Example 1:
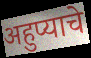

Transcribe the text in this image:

अहुप्याचे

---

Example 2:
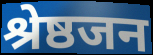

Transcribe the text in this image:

श्रेष्ठजन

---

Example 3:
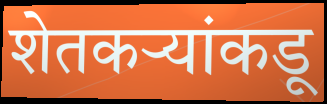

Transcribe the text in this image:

शेतकऱ्यांकडू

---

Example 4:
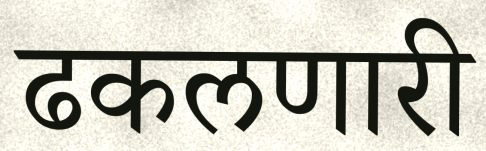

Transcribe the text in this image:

ढकलणारी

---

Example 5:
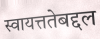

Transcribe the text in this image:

स्वायत्ततेबद्दल